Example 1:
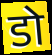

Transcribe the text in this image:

डो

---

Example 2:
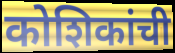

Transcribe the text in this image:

कोशिकांची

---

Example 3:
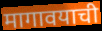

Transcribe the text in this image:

मागावयाची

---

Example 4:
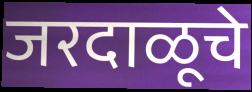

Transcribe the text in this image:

जरदाळूचे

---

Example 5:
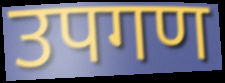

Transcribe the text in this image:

उपगण